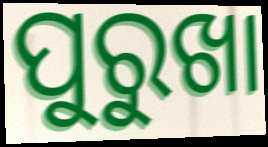
ପୁରୁଖା